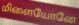
மிளையோனே